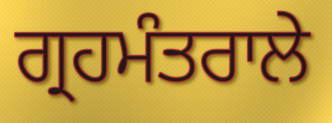
ਗ੍ਰਹਮੰਤਰਾਲੇ